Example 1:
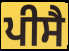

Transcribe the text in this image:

ਪੀਸੈ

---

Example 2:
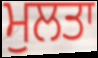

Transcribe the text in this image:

ਮੁਲਤਾ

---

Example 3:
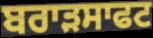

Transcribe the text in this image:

ਬਰਾੜਸਾਫਟ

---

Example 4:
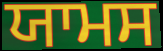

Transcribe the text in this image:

ਯਾਮਸ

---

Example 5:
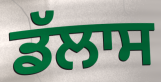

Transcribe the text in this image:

ਡੱਲਾਸ